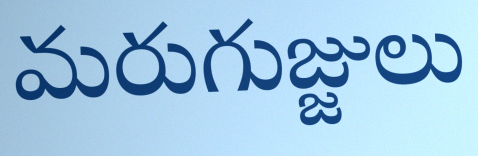
మరుగుజ్జులు